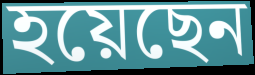
হয়েছেন